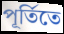
পূর্তিতে